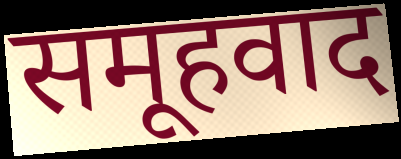
समूहवाद